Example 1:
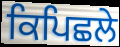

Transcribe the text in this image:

ਕਿਪਿਛਲੇ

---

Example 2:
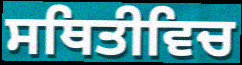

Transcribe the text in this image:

ਸਥਿਤੀਵਿਚ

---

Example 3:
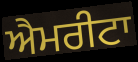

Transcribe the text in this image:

ਐਮਰੀਟਾ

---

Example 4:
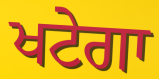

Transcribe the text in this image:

ਖਟੇਗਾ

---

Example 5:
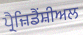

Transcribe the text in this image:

ਪ੍ਰੈਜ਼ਿਡੈਂਸ਼ੀਅਲ